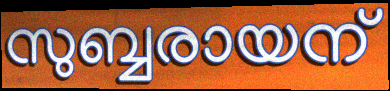
സുബ്ബരായന്